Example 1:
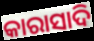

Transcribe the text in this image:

କାରାସାଦି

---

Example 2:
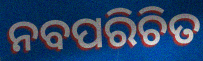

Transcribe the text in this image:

ନବପରିଚିତ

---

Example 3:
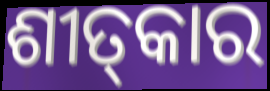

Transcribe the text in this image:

ଶୀତ୍‌କାର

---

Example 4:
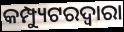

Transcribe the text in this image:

କମ୍ପ୍ୟୁଟରଦ୍ୱାରା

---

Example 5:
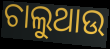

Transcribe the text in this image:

ଚାଲୁଥାଉ